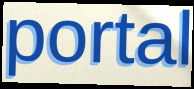
portal